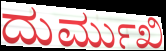
ದುರ್ಮುಖಿ